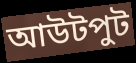
আউটপুট